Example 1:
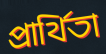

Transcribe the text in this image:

প্রার্থিতা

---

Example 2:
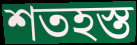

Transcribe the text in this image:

শতহস্ত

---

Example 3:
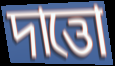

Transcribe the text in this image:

দাত্তো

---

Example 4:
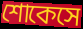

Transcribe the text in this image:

শোকেসে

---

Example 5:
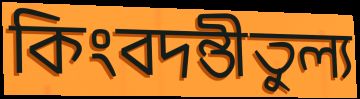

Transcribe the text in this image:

কিংবদন্তীতুল্য